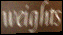
weights